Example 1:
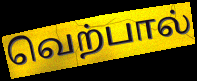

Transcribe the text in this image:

வெற்பால்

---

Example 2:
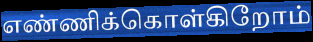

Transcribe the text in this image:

எண்ணிக்கொள்கிறோம்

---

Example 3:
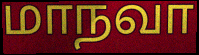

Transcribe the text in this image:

மாநவா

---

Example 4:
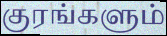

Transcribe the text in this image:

குரங்களும்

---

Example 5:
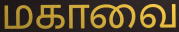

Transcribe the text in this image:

மகாவை